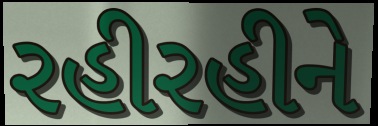
રહીરહીને